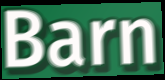
Barn